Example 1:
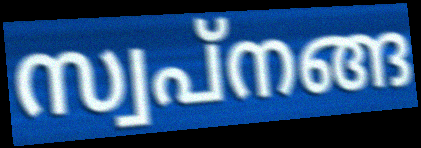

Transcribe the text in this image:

സ്വപ്നങ്ങ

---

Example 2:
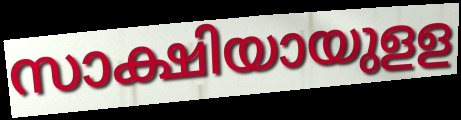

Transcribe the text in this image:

സാക്ഷിയായുളള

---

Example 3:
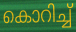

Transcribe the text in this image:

കൊറിച്ച്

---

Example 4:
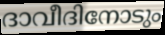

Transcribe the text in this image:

ദാവീദിനോടും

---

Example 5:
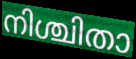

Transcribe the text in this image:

നിശ്ചിതാ